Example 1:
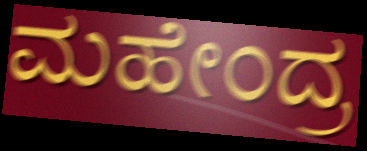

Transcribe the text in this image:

ಮಹೇಂದ್ರ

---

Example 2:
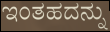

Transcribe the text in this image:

ಇಂತಹದನ್ನು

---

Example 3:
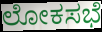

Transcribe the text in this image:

ಲೋಕಸಭೆ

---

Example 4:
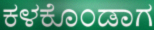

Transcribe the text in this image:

ಕಳಕೊಂಡಾಗ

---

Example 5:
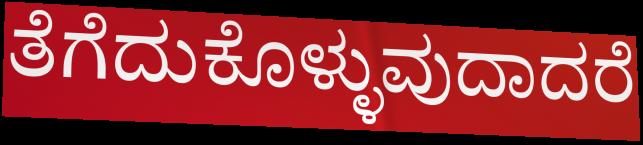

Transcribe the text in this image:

ತೆಗೆದುಕೊಳ್ಳುವುದಾದರೆ